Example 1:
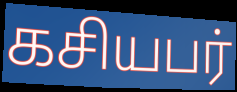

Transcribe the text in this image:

கசியபர்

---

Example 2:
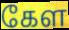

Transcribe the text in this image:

கேள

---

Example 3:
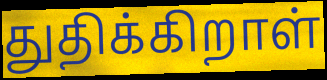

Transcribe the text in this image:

துதிக்கிறாள்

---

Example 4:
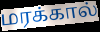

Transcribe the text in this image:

மரக்கால்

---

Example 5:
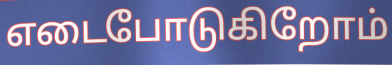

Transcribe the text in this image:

எடைபோடுகிறோம்